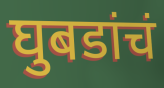
घुबडांचं